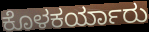
ಕೊಳಕರ್ಯಾರು